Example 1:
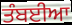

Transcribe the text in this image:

ਤੰਬਈਆ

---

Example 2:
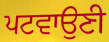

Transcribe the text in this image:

ਪਟਵਾਉਣੀ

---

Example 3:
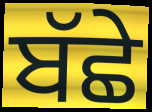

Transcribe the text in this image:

ਬੱਛੇ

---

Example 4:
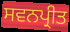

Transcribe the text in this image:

ਸਵਨਪ੍ਰੀਤ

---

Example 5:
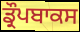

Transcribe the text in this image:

ਡ੍ਰੌਪਬਾਕਸ